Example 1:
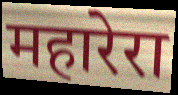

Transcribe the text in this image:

महारेरा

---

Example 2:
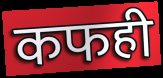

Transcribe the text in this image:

कफही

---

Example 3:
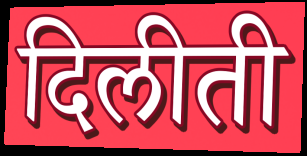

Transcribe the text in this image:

दिलीती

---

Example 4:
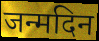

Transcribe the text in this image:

जन्मदिन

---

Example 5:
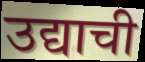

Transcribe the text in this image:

उद्याची